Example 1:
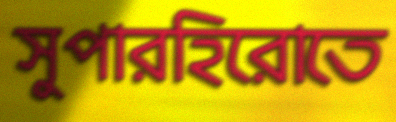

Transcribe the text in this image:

সুপারহিরোতে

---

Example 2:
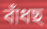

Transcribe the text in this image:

বাঁধছ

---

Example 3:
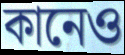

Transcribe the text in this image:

কানেও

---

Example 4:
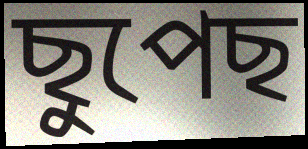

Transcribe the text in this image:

ছুপেছ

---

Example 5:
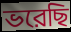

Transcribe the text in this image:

ভরেছি